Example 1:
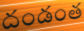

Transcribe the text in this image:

దండంత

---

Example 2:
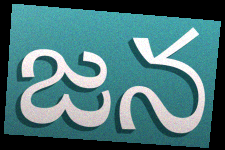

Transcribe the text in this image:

జన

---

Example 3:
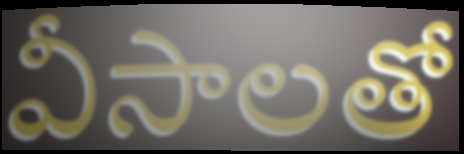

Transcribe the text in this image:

వీసాలతో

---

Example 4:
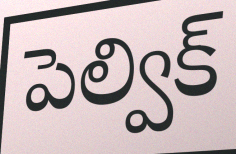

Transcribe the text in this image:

పెల్విక్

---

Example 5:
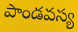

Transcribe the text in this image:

పాండవస్య